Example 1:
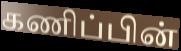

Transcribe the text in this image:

கணிப்பின்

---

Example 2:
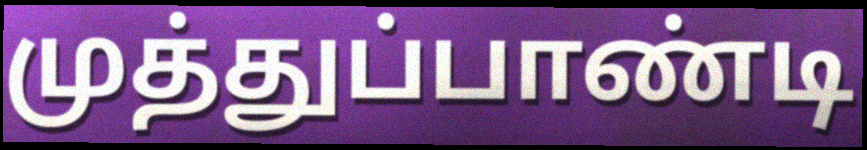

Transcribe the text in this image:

முத்துப்பாண்டி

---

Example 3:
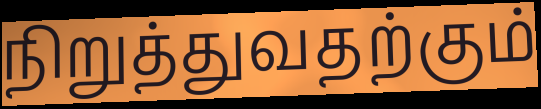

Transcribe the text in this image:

நிறுத்துவதற்கும்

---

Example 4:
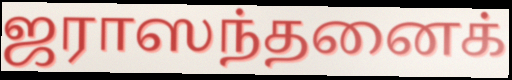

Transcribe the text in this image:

ஜராஸந்தனைக்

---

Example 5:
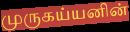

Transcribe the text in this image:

முருகய்யனின்